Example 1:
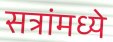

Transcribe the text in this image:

सत्रांमध्ये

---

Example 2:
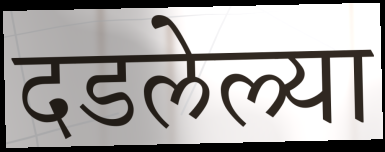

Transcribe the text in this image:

दडलेल्या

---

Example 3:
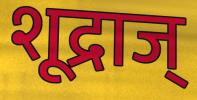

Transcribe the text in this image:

शूद्राज्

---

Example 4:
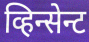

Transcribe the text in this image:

व्हिन्सेन्ट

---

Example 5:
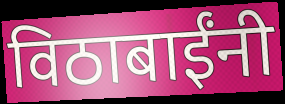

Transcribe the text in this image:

विठाबाईंनी